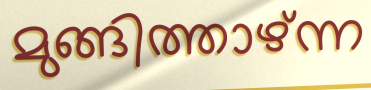
മുങ്ങിത്താഴ്ന്ന